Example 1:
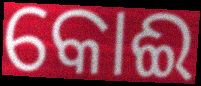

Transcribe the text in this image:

କୋଈ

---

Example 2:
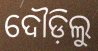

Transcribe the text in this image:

ଦୌଡ଼ିଲୁ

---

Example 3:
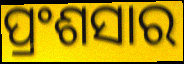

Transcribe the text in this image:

ପ୍ରଂଶସାର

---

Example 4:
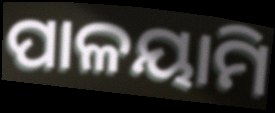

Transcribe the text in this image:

ପାଳୟାମି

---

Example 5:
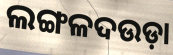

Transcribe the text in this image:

ଲଙ୍ଗଳଦଉଡ଼ା